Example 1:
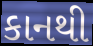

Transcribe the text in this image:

કાનથી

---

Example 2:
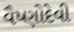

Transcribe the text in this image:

વૈષ્ણોદેવી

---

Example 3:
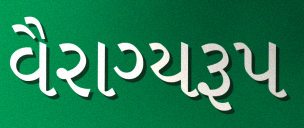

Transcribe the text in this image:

વૈરાગ્યરૂપ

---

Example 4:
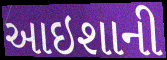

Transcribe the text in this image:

આઇશાની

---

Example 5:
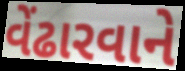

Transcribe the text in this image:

વેંઢારવાને